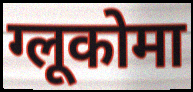
ग्लूकोमा